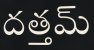
దత్తమ్